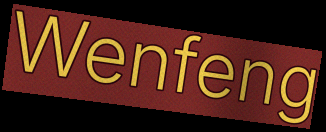
Wenfeng